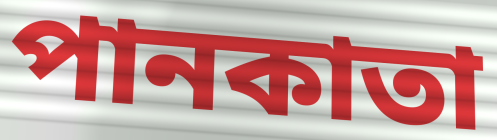
পানকাতা